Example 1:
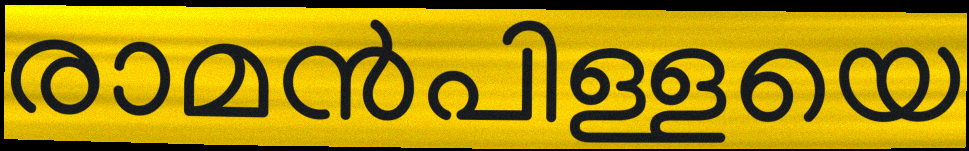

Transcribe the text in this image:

രാമൻപിള്ളയെ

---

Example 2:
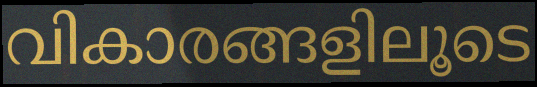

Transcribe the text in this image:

വികാരങ്ങളിലൂടെ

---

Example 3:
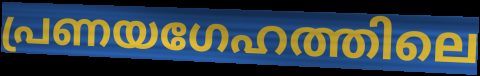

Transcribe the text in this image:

പ്രണയഗേഹത്തിലെ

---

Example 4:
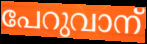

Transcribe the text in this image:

പേറുവാന്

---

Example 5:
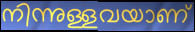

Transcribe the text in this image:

നിന്നുള്ളവയാണ്